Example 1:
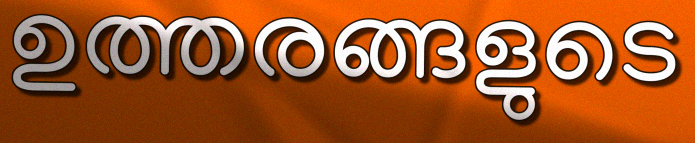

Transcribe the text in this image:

ഉത്തരങ്ങളുടെ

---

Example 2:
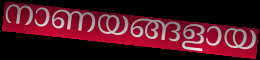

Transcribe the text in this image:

നാണയങ്ങളായ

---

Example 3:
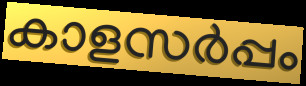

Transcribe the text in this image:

കാളസർപ്പം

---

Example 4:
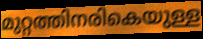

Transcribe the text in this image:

മുറ്റത്തിനരികെയുള്ള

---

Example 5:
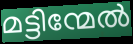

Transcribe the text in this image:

മട്ടിന്മേൽ